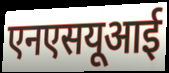
एनएसयूआई